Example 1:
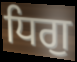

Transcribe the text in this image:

ਧਿਗੁ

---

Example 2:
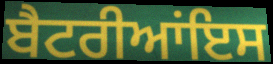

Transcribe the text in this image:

ਬੈਟਰੀਆਂਇਸ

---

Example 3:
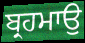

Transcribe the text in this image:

ਬ੍ਰਹਮਾਉ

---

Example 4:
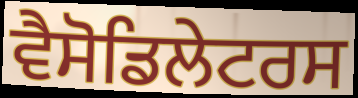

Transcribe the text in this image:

ਵੈਸੋਡਿਲੇਟਰਸ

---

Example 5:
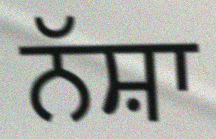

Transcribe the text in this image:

ਨੱਸ਼ਾ